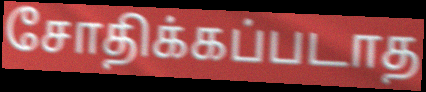
சோதிக்கப்படாத